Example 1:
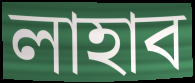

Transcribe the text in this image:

লাহাব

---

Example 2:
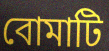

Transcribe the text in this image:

বোমাটি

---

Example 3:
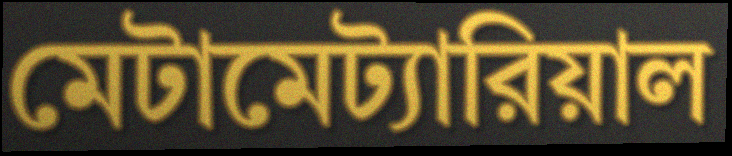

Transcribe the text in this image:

মেটামেট্যারিয়াল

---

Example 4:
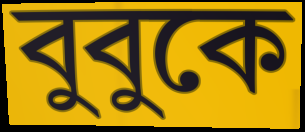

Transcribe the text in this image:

বুবুকে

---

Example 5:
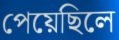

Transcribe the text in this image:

পেয়েছিলে